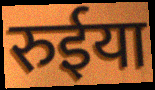
रुईया